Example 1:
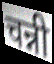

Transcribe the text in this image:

चन्नी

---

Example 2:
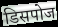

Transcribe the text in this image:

डिसपोज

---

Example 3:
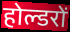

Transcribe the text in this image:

होल्डरों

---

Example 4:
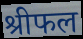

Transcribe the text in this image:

श्रीफल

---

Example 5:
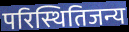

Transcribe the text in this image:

परिस्थितिजन्य